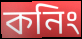
কনিং